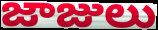
జాజులు